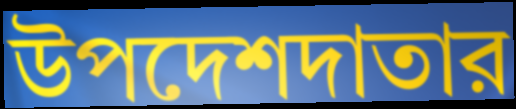
উপদেশদাতার